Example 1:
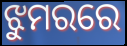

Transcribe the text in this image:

ଝୁମରରେ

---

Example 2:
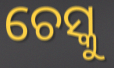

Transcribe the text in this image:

ଚେସ୍କୁ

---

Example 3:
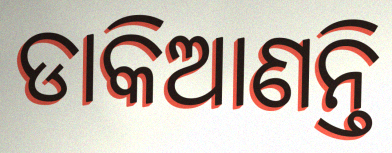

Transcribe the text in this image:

ଡାକିଆଣନ୍ତି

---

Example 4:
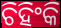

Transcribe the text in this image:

ଚିହିଂକି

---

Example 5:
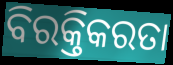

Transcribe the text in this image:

ବିରକ୍ତିକରତା